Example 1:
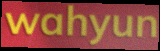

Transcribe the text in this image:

wahyun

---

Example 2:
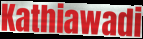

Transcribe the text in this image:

Kathiawadi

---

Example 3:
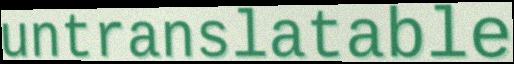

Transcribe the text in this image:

untranslatable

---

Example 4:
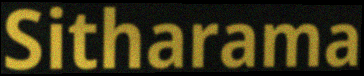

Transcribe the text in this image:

Sitharama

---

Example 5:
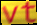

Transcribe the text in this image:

vt